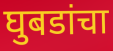
घुबडांचा